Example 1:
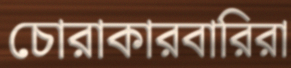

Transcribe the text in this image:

চোরাকারবারিরা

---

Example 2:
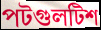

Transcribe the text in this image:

পটগুলটিশ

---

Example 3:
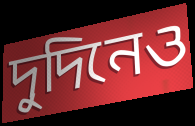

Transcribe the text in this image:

দুদিনেও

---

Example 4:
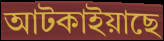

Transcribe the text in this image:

আটকাইয়াছে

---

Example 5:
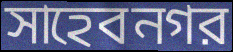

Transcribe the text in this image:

সাহেবনগর